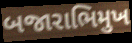
બજારાભિમુખ